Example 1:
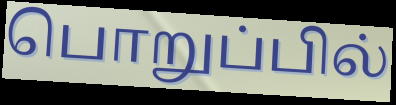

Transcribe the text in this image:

பொறுப்பில்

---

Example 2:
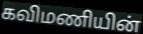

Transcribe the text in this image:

கவிமணியின்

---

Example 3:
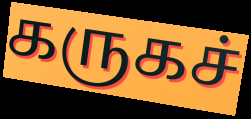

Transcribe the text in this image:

கருகச்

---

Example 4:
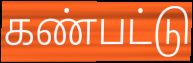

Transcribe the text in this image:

கண்பட்டு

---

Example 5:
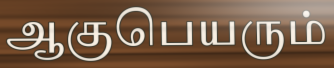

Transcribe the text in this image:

ஆகுபெயரும்